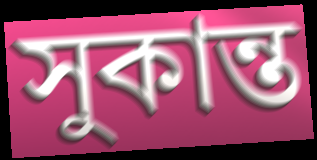
সুকান্ত